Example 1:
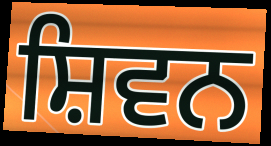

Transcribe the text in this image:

ਸ਼ਿਵਨ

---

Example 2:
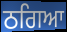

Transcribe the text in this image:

ਠਗਿਆ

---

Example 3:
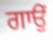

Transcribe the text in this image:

ਗਾਉਂ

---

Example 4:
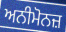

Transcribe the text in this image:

ਅਨੀਮੋਨਜ਼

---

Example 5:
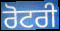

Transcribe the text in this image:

ਰੋਟਰੀ